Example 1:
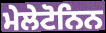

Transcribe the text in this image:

ਮੇਲੇਟੋਨਿਨ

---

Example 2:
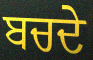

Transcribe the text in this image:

ਬਚਦੇ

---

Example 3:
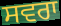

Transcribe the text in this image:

ਸਵਰਾ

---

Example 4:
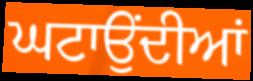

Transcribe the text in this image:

ਘਟਾਉਂਦੀਆਂ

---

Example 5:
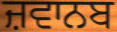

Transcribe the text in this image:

ਜ਼ਵਾਨਬ